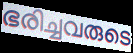
ഭരിച്ചവരുടെ